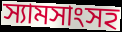
স্যামসাংসহ